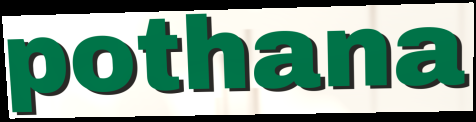
pothana